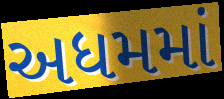
અધમમાં